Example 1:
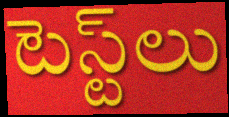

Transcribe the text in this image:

టెస్ట్‌లు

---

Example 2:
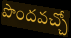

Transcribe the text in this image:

పొందవచ్చో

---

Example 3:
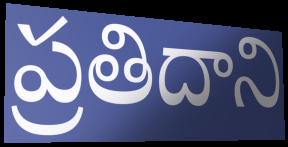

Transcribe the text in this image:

ప్రతిదాని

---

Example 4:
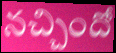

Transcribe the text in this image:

నచ్చిందో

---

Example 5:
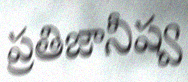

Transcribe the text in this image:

ప్రతిజానీష్వ